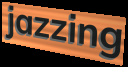
jazzing